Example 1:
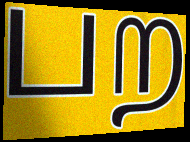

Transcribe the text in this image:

பற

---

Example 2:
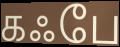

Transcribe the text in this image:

கஃபே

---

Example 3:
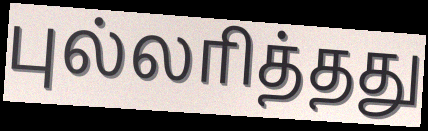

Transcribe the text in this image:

புல்லரித்தது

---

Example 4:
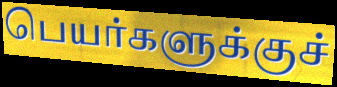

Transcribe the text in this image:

பெயர்களுக்குச்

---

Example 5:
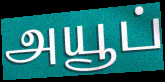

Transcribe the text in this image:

அயூப்